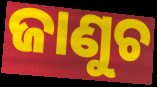
ଜାଣୁଚ